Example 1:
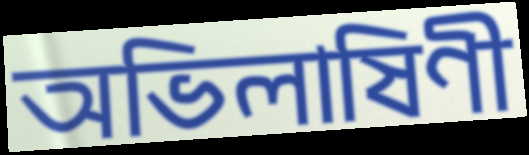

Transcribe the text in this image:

অভিলাষিণী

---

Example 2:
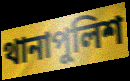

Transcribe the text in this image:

থানাপুলিশ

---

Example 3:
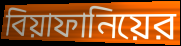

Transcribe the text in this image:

বিয়াফানিয়ের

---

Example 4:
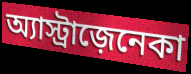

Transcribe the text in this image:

অ্যাস্ট্রাজ়েনেকা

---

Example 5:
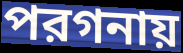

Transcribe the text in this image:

পরগনায়